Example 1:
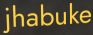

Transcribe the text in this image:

jhabuke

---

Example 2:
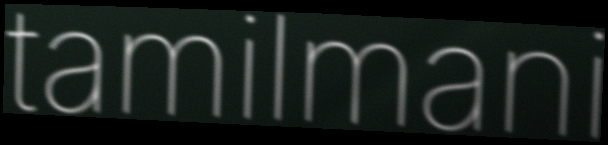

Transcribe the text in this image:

tamilmani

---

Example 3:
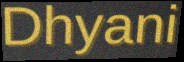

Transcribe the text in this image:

Dhyani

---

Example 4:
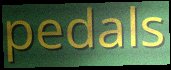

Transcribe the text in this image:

pedals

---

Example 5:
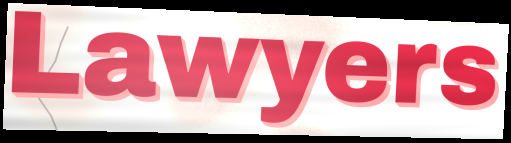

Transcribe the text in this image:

Lawyers